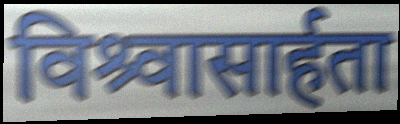
विश्र्वासार्हता